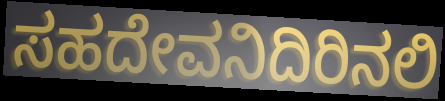
ಸಹದೇವನಿದಿರಿನಲಿ